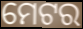
ମେଟର